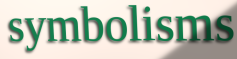
symbolisms